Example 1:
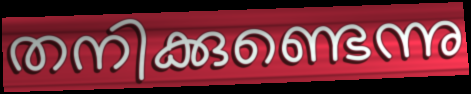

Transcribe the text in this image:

തനിക്കുണ്ടെന്നു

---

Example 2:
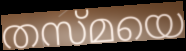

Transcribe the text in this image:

തസ്മയെ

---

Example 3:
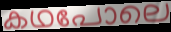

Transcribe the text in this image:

കഥപോലെ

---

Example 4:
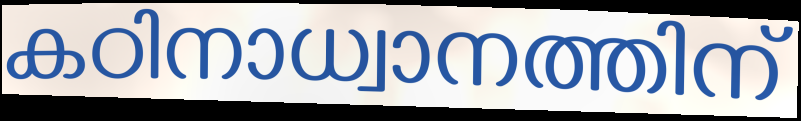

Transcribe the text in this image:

കഠിനാധ്വാനത്തിന്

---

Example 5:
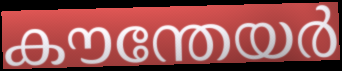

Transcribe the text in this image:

കൗന്തേയർ